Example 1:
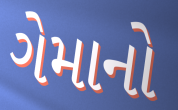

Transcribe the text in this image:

ગેમાનો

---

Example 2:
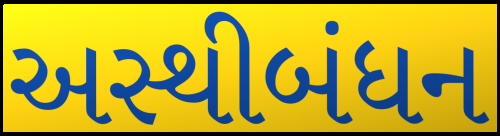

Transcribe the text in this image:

અસ્થીબંધન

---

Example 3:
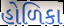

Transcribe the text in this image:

હોળિકા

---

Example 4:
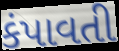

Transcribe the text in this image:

કંપાવતી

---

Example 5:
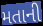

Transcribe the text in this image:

મતાની